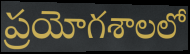
ప్రయోగశాలలో